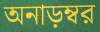
অনাড়ম্বর